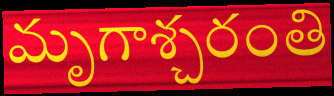
మృగాశ్చరంతి